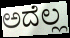
ಅದೆಲ್ಲ